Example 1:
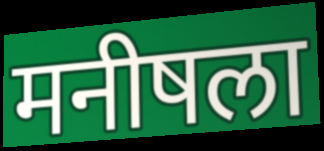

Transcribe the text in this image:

मनीषला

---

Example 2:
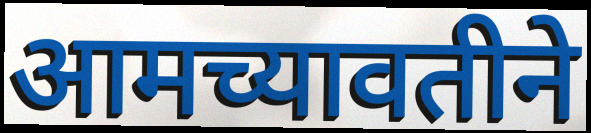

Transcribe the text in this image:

आमच्यावतीने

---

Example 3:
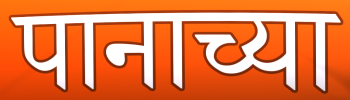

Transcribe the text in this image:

पानाच्या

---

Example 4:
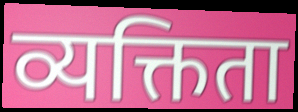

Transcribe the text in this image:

व्यक्तिता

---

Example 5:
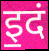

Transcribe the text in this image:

इ॒दं